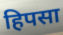
हिपसा